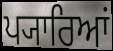
ਪ੍ਯਾਰਿਆਂ